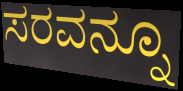
ಸರವನ್ನೂ